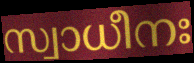
സ്വാധീനഃ